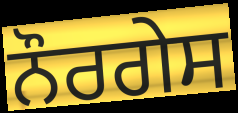
ਨੌਰਗੇਸ